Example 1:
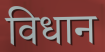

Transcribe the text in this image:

विधान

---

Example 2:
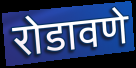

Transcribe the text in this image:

रोडावणे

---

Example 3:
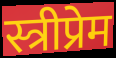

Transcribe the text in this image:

स्त्रीप्रेम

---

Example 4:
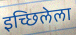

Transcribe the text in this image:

इच्छिलेला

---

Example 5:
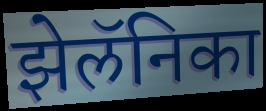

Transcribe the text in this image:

झेलॅनिका